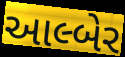
આલ્બેર